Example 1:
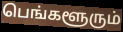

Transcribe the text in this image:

பெங்களூரும்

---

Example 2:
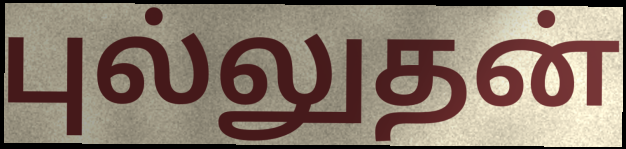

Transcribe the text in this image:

புல்லுதன்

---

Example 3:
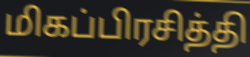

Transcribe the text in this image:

மிகப்பிரசித்தி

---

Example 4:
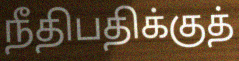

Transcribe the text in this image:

நீதிபதிக்குத்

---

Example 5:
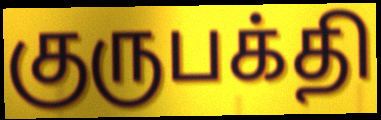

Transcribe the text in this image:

குருபக்தி